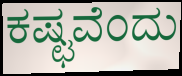
ಕಷ್ಟವೆಂದು